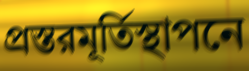
প্রস্তরমূর্তিস্থাপনে